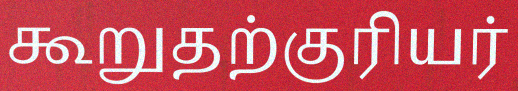
கூறுதற்குரியர்